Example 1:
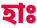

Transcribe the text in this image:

হাঃ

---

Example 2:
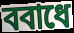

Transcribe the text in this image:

ববাধে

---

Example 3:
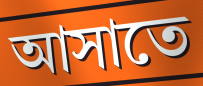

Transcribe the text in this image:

আসাতে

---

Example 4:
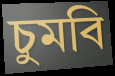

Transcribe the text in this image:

চুমবি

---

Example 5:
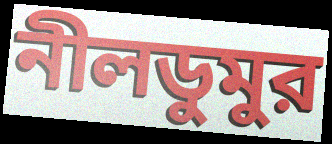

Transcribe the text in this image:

নীলডুমুর